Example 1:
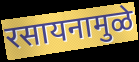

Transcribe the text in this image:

रसायनामुळे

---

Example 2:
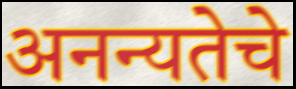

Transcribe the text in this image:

अनन्यतेचे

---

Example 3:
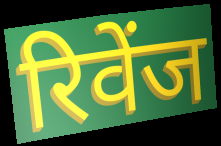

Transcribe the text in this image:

रिवेंज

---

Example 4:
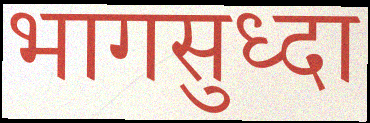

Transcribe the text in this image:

भागसुध्दा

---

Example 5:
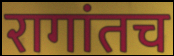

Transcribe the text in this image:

रागांतच